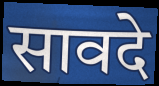
सावदे